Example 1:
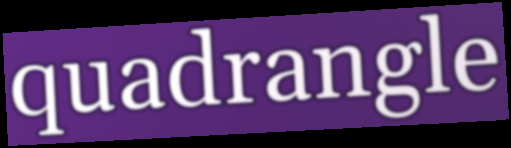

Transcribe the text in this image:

quadrangle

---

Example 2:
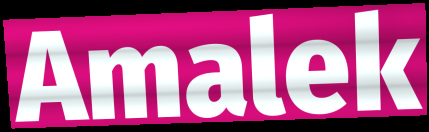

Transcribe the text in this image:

Amalek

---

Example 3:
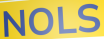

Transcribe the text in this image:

NOLS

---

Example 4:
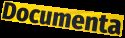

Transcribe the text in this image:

Documenta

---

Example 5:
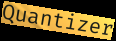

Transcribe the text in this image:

Quantizer